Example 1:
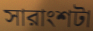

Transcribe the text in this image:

সারাংশটা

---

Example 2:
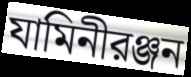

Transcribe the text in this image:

যামিনীরঞ্জন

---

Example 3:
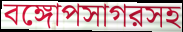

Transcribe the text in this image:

বঙ্গোপসাগরসহ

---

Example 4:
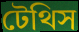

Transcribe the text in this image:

টেথিস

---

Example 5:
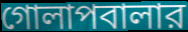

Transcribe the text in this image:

গোলাপবালার